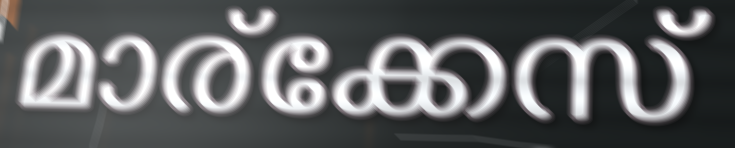
മാര്ക്കേസ്